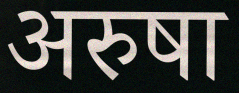
अरुषा